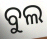
ବୁଲ